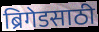
ब्रिगेडसाठी